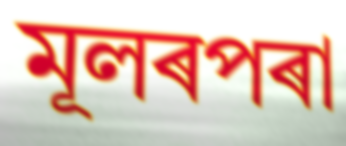
মূলৰপৰা